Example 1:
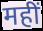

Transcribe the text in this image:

महीं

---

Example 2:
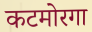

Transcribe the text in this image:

कटमोरगा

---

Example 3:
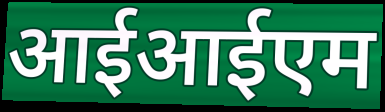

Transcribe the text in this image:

आईआईएम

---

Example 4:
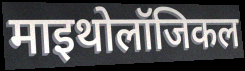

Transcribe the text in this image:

माइथोलॉजिकल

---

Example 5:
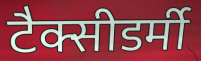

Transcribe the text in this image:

टैक्सीडर्मी